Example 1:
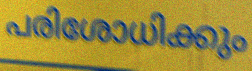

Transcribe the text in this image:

പരിശോധിക്കും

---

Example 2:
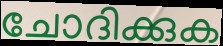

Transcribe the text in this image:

ചോദിക്കുക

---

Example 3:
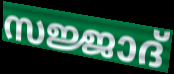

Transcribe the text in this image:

സജ്ജാദ്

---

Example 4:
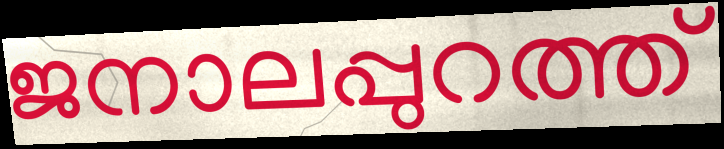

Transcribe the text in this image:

ജനാലപ്പുറത്ത്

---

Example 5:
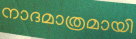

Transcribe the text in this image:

നാദമാത്രമായി